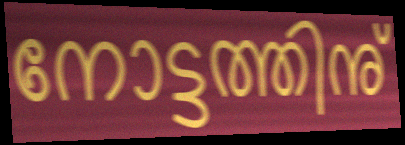
നോട്ടത്തിനു്